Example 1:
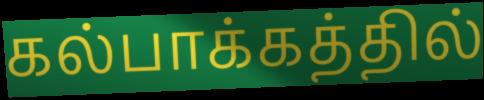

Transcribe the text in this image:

கல்பாக்கத்தில்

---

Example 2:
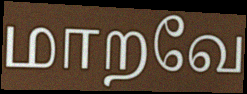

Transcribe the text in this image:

மாறவே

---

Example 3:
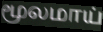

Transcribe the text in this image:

மூலமாய்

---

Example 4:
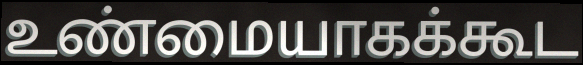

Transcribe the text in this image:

உண்மையாகக்கூட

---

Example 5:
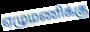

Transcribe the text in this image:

ஏழுமணிக்கு